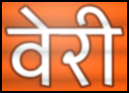
वेरी